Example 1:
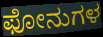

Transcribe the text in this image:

ಫೋನುಗಳ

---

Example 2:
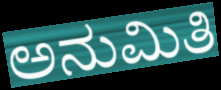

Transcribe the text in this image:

ಅನುಮಿತಿ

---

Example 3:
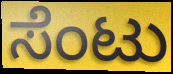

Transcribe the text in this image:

ಸೆಂಟು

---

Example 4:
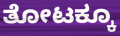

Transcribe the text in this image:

ತೋಟಕ್ಕೂ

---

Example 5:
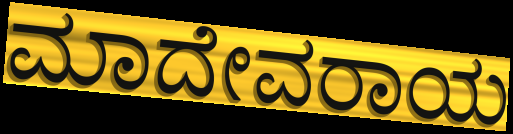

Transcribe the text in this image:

ಮಾದೇವರಾಯ